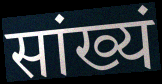
सांख्यं